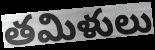
తమిళులు